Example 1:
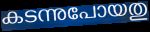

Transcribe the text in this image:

കടന്നുപോയതു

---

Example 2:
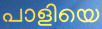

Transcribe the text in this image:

പാളിയെ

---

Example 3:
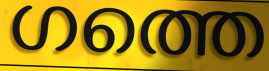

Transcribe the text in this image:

ഗത്തെ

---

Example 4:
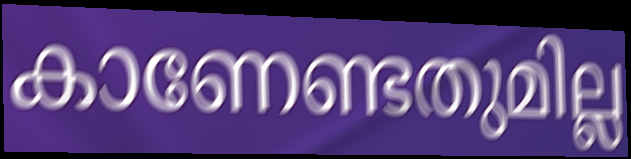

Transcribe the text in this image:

കാണേണ്ടതുമില്ല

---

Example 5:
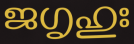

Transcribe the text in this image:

ജഗൃഹുഃ